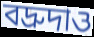
বদ্রুদাও